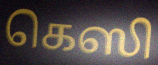
கெஸி